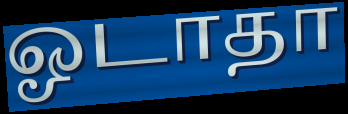
ஓடாதா